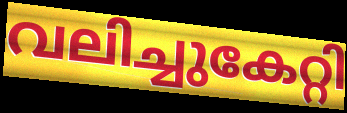
വലിച്ചുകേറ്റി